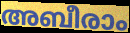
അബീരാം